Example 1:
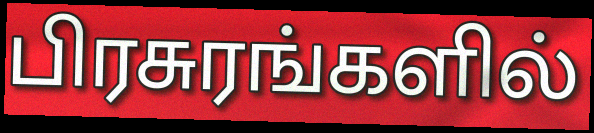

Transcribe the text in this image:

பிரசுரங்களில்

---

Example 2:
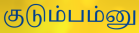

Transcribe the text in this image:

குடும்பம்னு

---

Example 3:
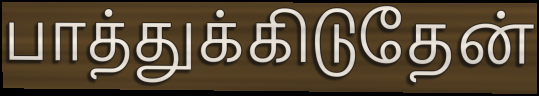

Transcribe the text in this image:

பாத்துக்கிடுதேன்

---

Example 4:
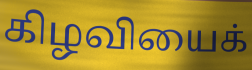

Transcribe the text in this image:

கிழவியைக்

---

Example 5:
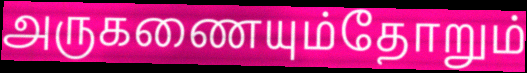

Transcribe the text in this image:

அருகணையும்தோறும்